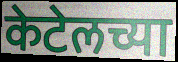
केटेलच्या